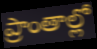
ప్రాంతాల్లో